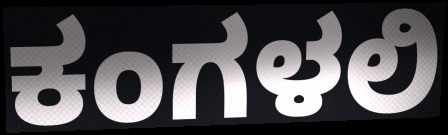
ಕಂಗಳಲಿ